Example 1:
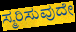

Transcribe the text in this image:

ಸ್ಮರಿಸುವುದೇ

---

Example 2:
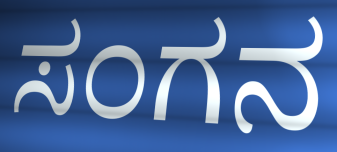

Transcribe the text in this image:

ಸಂಗನ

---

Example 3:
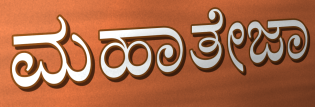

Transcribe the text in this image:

ಮಹಾತೇಜಾ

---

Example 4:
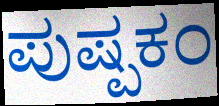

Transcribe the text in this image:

ಪುಷ್ಪಕಂ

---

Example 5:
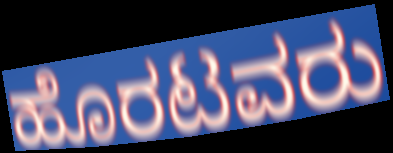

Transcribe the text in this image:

ಹೊರಟವರು